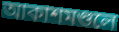
আকাশমণ্ডলে